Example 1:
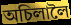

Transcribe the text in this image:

অচিলালৈ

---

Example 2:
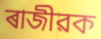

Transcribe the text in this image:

ৰাজীৱক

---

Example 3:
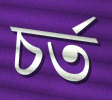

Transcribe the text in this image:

চৰ্ত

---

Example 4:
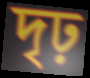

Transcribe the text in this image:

দৃঢ়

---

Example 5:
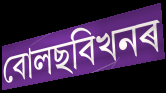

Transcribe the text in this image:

বোলছবিখনৰ